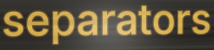
separators